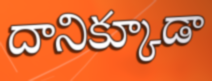
దానిక్కూడా